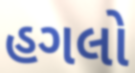
હગલો